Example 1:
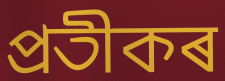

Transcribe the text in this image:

প্ৰতীকৰ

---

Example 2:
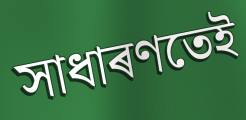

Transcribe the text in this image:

সাধাৰণতেই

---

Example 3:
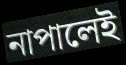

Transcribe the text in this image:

নাপালেই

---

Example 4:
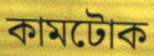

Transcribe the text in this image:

কামটোক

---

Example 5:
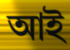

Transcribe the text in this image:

আই